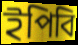
ইপিবি